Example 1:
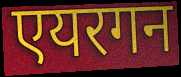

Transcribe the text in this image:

एयरगन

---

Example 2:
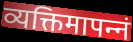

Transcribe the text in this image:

व्यक्तिमापन्नं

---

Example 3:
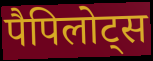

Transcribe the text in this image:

पैपिलोट्स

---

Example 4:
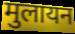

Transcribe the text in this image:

मुलायन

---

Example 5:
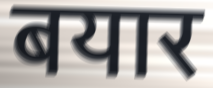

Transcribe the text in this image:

बयार